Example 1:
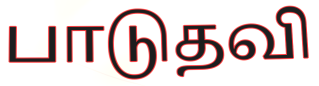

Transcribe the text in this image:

பாடுதவி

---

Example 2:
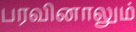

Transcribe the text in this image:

பரவினாலும்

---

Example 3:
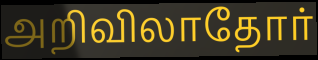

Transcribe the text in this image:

அறிவிலாதோர்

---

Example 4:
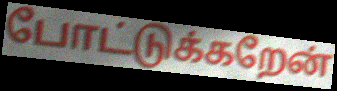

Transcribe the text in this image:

போட்டுக்கறேன்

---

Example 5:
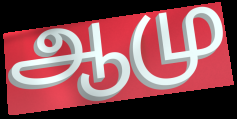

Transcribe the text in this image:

ஆமு